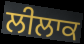
ਲੀਲਾਕ